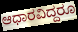
ಆಧಾರವಿದ್ದರೂ